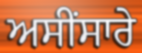
ਅਸੀਂਸਾਰੇ